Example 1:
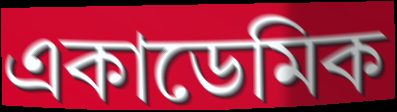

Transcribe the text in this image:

একাডেমিক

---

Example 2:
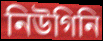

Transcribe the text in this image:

নিউগিনি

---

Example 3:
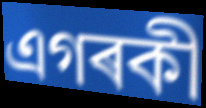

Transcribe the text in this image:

এগৰকী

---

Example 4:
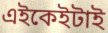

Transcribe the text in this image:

এইকেইটাই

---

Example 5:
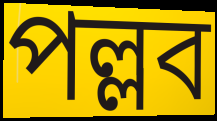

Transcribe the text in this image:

পল্লব